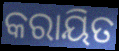
କରାୟିତ